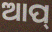
ଆପ୍